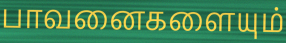
பாவனைகளையும்